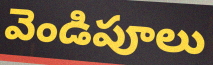
వెండిపూలు